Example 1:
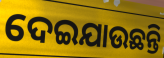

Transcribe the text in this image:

ଦେଇଯାଉଛନ୍ତି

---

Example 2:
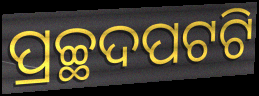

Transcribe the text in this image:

ପ୍ରଚ୍ଛଦପଟଟି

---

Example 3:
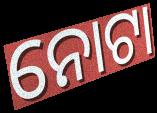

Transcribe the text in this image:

ନୋଟା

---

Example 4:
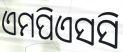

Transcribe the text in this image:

ଏମପିଏସସି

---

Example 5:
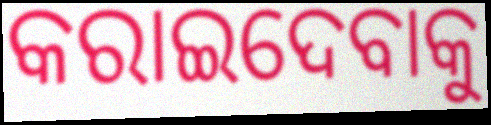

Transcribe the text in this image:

କରାଇଦେବାକୁ